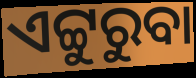
ଏଟ୍ଟୁରୁବା